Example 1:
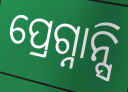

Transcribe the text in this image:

ପ୍ରେଗ୍ନାନ୍ସି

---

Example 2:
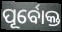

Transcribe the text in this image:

ପୂର୍ବୋକ୍ତ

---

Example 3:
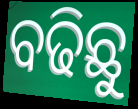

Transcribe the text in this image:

ବଢିଛୁ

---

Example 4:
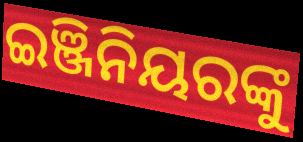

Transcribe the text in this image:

ଇଞ୍ଜିନିୟରଙ୍କୁ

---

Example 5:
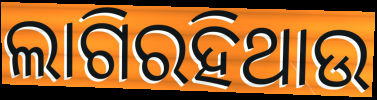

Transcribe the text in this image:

ଲାଗିରହିଥାଉ